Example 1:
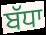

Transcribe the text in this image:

ਬੱਧਾ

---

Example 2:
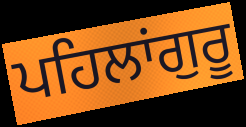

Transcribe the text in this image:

ਪਹਿਲਾਂਗੁਰੂ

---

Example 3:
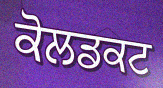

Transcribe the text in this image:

ਕੋਲਡਕਟ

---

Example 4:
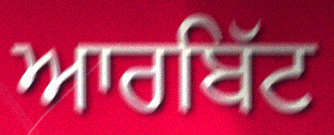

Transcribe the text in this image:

ਆਰਬਿੱਟ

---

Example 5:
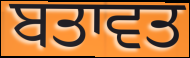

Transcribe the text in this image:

ਬਤਾਵਤ